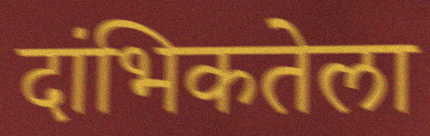
दांभिकतेला